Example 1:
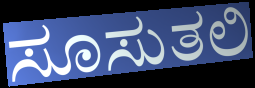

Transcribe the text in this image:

ಸೂಸುತಲಿ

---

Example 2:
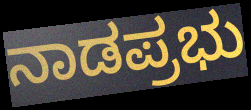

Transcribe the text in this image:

ನಾಡಪ್ರಭು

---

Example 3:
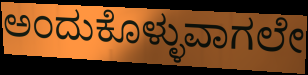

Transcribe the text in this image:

ಅಂದುಕೊಳ್ಳುವಾಗಲೇ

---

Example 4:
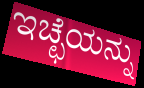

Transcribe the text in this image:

ಇಚ್ಛೆಯನ್ನು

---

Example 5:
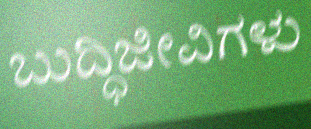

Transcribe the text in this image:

ಬುದ್ಧಿಜೀವಿಗಳು